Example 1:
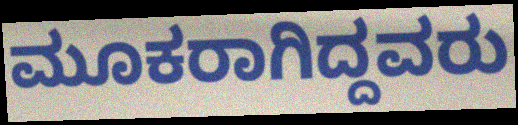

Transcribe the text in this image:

ಮೂಕರಾಗಿದ್ದವರು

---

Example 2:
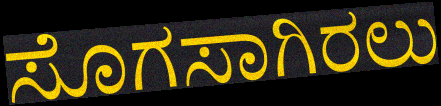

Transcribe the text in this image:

ಸೊಗಸಾಗಿರಲು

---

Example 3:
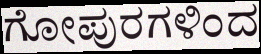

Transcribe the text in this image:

ಗೋಪುರಗಳಿಂದ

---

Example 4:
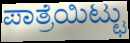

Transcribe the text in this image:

ಪಾತ್ರೆಯಿಟ್ಟು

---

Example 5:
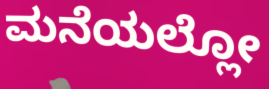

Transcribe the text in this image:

ಮನೆಯಲ್ಲೋ